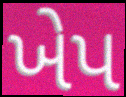
ખેપ